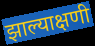
झाल्याक्षणी